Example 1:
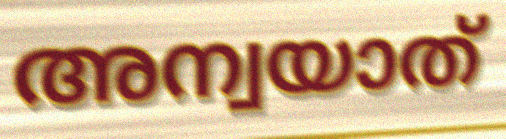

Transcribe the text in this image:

അന്വയാത്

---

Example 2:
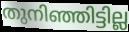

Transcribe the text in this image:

തുനിഞ്ഞിട്ടില്ല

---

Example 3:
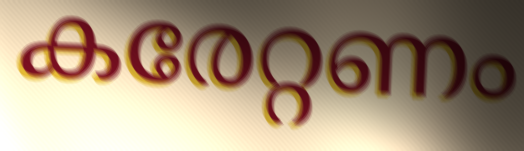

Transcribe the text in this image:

കരേറ്റണം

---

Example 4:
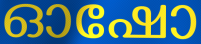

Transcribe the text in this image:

ഓഷോ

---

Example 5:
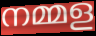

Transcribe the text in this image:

നമ്മള